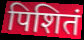
पिशितं